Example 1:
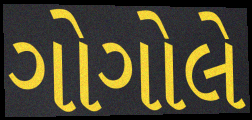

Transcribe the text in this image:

ગોગોલે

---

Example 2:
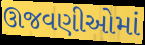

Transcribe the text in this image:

ઊજવણીઓમાં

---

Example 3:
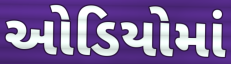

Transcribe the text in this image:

ઓડિયોમાં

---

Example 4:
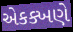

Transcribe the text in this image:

એકક્ખણે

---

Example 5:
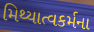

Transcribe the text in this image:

મિથ્યાત્વકર્મના